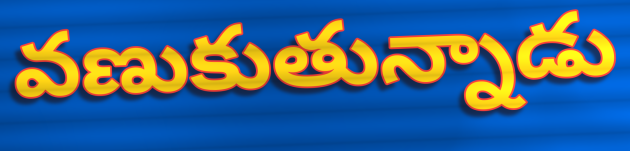
వణుకుతున్నాడు